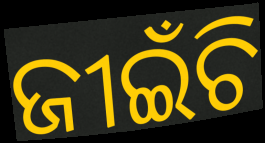
ଜୀଇଁଚି